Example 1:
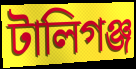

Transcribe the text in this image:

টালিগঞ্জ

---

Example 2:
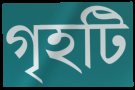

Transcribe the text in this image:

গৃহটি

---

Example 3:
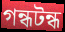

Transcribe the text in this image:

গন্ধটন্ধ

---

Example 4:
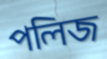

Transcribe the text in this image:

পলিজ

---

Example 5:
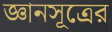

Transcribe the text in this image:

জ্ঞানসূত্রের